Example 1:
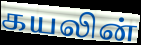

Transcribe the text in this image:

கயலின்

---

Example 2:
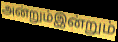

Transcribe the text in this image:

அன்றும்இன்றும்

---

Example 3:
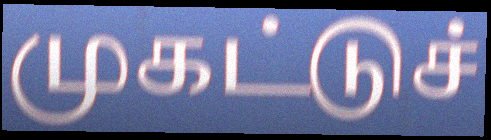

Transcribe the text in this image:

முகட்டுச்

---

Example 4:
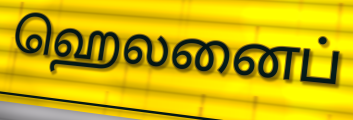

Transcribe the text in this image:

ஹெலனைப்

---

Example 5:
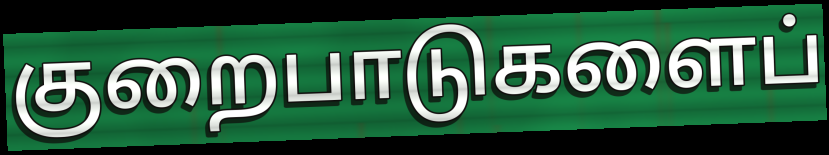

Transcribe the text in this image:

குறைபாடுகளைப்